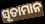
ସୂତାମାନ